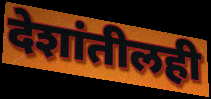
देशांतीलही